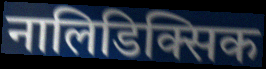
नालिडिक्सिक